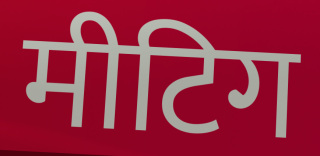
मीटिग